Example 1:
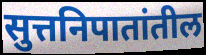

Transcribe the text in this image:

सुत्तनिपातांतील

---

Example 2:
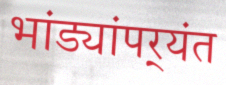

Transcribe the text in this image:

भांड्यांपर्यंत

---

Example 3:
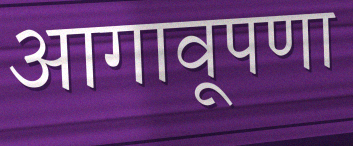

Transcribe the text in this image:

आगावूपणा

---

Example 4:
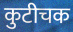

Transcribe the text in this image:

कुटीचक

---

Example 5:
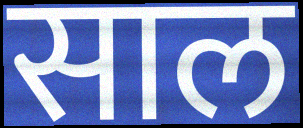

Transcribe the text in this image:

साल